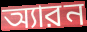
অ্যারন